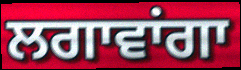
ਲਗਾਵਾਂਗਾ